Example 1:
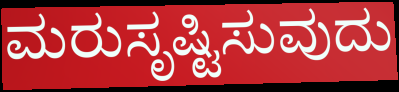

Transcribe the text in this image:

ಮರುಸೃಷ್ಟಿಸುವುದು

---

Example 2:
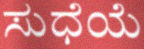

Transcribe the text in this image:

ಸುಧೆಯೆ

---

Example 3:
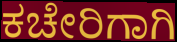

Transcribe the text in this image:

ಕಚೇರಿಗಾಗಿ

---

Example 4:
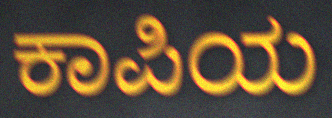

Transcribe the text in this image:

ಕಾಪಿಯ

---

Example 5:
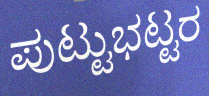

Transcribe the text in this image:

ಪುಟ್ಟುಭಟ್ಟರ